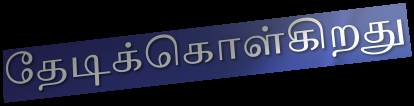
தேடிக்கொள்கிறது